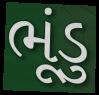
ભૂંડુ